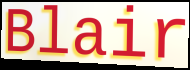
Blair